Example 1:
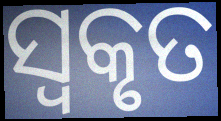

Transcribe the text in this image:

ସ୍ୱକୃତ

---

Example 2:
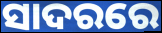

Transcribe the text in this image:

ସାଦରରେ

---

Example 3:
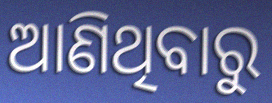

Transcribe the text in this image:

ଆଣିଥିବାରୁ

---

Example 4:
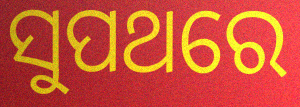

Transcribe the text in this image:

ସୁପଥରେ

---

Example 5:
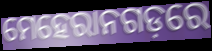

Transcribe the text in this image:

ମେହେରାନଗଡ଼ରେ